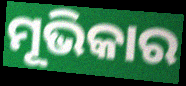
ମୂଭିକାର